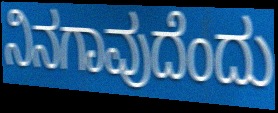
ನಿನಗಾವುದೆಂದು